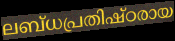
ലബ്ധപ്രതിഷ്ഠരായ